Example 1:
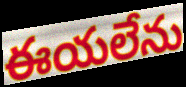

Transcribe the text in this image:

ఈయలేను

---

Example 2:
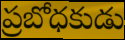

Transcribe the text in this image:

ప్రబోధకుడు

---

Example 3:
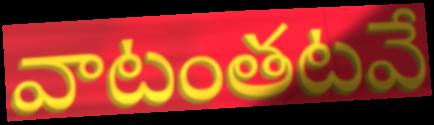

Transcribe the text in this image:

వాటంతటవే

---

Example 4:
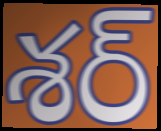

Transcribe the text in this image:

శర్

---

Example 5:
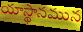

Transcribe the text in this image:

యాస్థానమున